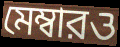
মেম্বারও